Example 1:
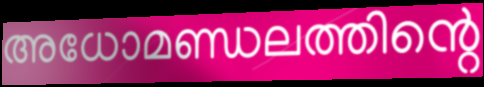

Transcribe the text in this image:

അധോമണ്ഡലത്തിന്റെ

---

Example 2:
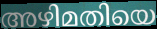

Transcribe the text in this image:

അഴിമതിയെ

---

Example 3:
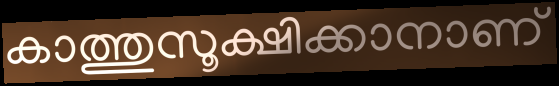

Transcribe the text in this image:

കാത്തുസൂക്ഷിക്കാനാണ്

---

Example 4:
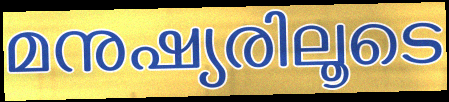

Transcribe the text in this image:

മനുഷ്യരിലൂടെ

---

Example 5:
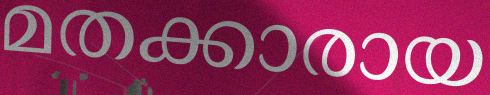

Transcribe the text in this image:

മതക്കാരായ